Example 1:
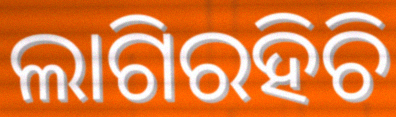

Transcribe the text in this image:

ଲାଗିରହିଚି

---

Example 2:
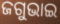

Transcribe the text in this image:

ଜଗୁଭାଇ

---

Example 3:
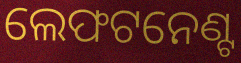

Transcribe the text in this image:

ଲେଫଟନେଣ୍ଟ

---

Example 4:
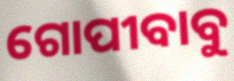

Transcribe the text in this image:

ଗୋପୀବାବୁ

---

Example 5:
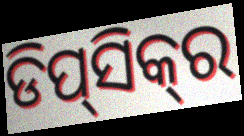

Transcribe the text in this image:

ଡିପ୍‌ସିକ୍‌ର